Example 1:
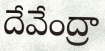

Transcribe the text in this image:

దేవేంద్రా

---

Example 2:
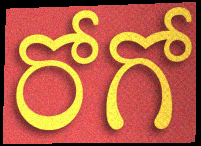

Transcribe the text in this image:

రోగో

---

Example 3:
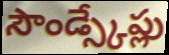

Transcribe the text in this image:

సౌండ్స్కేప్లు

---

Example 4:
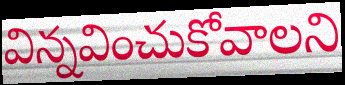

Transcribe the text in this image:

విన్నవించుకోవాలని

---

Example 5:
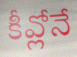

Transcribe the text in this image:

కీవ్లోనే